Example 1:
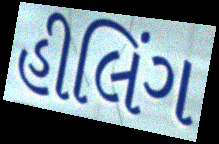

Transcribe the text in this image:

હીલિંગ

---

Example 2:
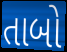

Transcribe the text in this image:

તાબો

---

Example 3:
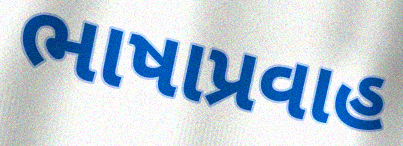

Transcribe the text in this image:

ભાષાપ્રવાહ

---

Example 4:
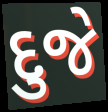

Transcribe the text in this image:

દુજે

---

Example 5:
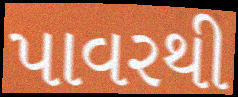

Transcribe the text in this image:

પાવરથી